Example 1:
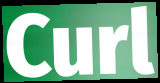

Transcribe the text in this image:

Curl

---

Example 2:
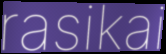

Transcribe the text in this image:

rasikai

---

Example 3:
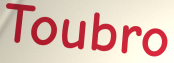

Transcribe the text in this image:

Toubro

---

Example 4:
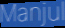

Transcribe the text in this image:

Manjul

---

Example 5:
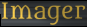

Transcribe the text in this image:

Imager